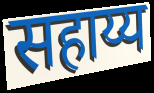
सहाय्य